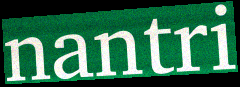
nantri